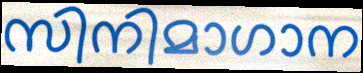
സിനിമാഗാന